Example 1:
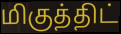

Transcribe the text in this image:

மிகுத்திட்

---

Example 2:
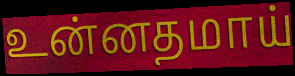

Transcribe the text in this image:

உன்னதமாய்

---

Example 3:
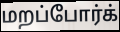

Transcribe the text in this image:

மறப்போர்க்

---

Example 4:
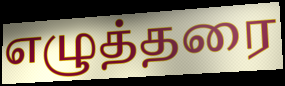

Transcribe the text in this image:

எழுத்தரை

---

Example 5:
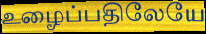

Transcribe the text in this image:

உழைப்பதிலேயே